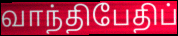
வாந்திபேதிப்